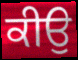
ਕੀਉ